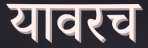
यावरच